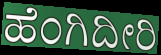
ಹೆಂಗಿದೀರಿ